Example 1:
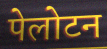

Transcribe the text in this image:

पेलोटन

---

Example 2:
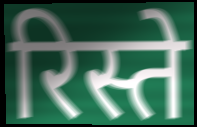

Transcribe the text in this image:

रिस्ते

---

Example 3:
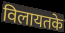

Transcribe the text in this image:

विलायतके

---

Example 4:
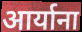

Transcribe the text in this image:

आर्याना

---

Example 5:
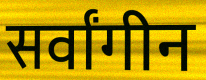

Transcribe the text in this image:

सर्वांगीन